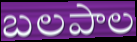
బలపాల